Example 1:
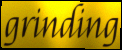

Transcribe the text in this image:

grinding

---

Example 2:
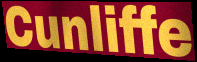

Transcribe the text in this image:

Cunliffe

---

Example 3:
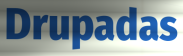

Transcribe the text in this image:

Drupadas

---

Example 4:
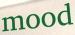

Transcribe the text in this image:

mood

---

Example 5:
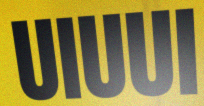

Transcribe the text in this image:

UIUUI